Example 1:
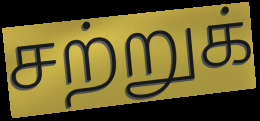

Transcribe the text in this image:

சற்றுக்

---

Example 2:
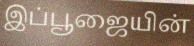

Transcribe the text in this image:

இப்பூஜையின்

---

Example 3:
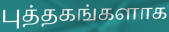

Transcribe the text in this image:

புத்தகங்களாக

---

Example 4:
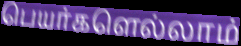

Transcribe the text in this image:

பெயர்களெல்லாம்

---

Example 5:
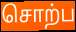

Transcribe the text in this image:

சொற்ப